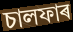
চালফাৰ